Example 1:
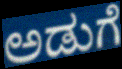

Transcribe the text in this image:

ಅಡುಗೆ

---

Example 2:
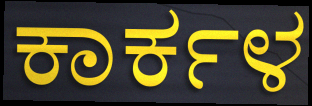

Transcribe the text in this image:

ಕಾರ್ಕಳ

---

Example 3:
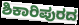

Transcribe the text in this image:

ಶಿಕಾರಿಪುರದ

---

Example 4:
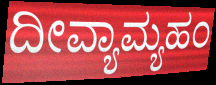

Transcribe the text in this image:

ದೀವ್ಯಾಮ್ಯಹಂ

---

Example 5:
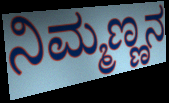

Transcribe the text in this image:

ನಿಮ್ಮಣ್ಣನ